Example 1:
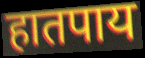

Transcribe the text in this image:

हातपाय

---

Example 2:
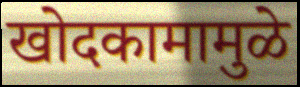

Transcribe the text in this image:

खोदकामामुळे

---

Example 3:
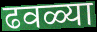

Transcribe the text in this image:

ढवळ्या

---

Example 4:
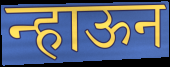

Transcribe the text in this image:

न्हाऊन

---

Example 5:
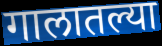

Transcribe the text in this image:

गालातल्या